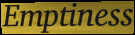
Emptiness